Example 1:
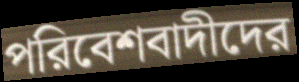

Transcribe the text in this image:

পরিবেশবাদীদের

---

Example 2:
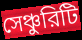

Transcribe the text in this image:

সেঞ্চুরিটি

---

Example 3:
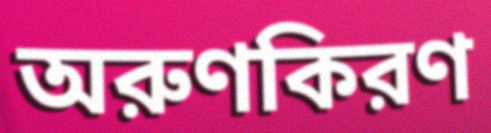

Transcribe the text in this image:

অরুণকিরণ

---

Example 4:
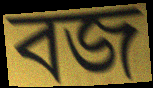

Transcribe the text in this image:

বজ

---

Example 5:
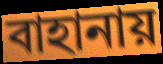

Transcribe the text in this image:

বাহানায়